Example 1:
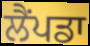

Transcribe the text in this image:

ਲੈਂਪਡਾ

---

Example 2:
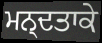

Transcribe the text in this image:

ਮਨ੍ਦਤਾਕੇ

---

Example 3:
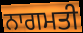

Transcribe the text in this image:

ਨਾਗਮਤੀ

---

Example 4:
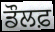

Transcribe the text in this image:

ਡੌਲਫ਼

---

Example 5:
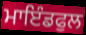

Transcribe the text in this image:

ਮਾਇੰਡਫੁਲ